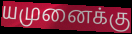
யமுனைக்கு